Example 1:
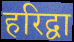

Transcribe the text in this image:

हरिद्वा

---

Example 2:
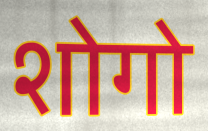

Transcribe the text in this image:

शोगो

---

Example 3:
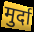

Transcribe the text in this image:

मुर्दा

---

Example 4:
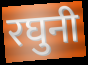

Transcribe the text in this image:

रघुनी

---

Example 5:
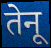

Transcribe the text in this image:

तेनू